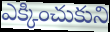
ఎక్కించుకుని